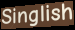
Singlish